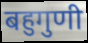
बहुगुणी